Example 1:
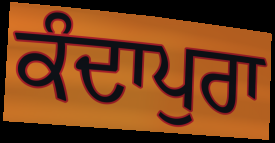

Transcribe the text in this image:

ਕੰਦਾਪੁਰਾ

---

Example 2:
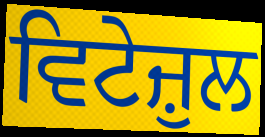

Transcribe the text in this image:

ਵਿਟੇਜ਼ੁਲ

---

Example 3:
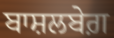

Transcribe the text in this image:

ਬਾਸ਼ਲਬੇਗ਼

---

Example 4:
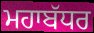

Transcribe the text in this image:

ਮਹਾਬੱਧਰ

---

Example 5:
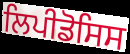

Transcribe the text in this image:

ਲਿਪੀਡੋਸਿਸ